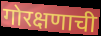
गोरक्षणाची